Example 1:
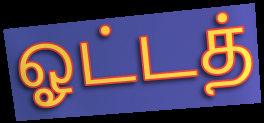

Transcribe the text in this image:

ஓட்டத்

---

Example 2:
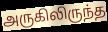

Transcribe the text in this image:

அருகிலிருந்த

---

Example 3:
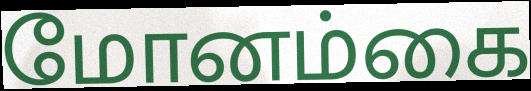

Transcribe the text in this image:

மோனம்கை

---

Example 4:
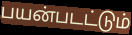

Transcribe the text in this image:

பயன்படட்டும்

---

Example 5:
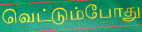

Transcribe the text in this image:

வெட்டும்போது